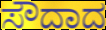
ಸೌದಾದ